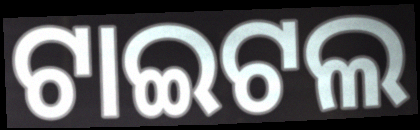
ଟାଇଟଲ